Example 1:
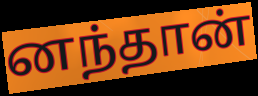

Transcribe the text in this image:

னந்தான்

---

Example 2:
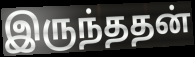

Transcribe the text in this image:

இருந்ததன்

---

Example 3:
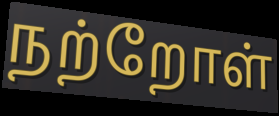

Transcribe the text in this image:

நற்றோள்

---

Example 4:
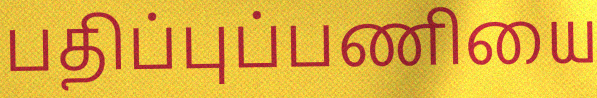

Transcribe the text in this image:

பதிப்புப்பணியை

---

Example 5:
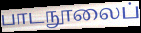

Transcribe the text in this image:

பாடநூலைப்